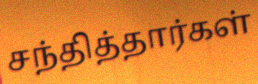
சந்தித்தார்கள்